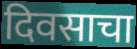
दिवसाचा